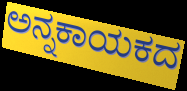
ಅನ್ನಕಾಯಕದ